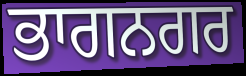
ਭਾਗਨਗਰ